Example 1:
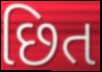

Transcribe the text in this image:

છિત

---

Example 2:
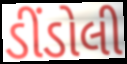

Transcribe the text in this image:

ડીંડોલી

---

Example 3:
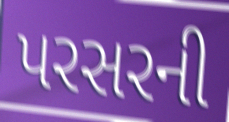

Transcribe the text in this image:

પરસરની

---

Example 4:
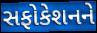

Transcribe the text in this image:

સફોકેશનને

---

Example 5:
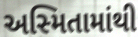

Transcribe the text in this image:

અસ્મિતામાંથી